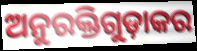
ଅନୁରକ୍ତିଗୁଡ଼ାକର